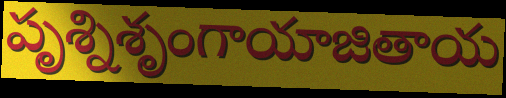
పృశ్నిశృంగాయాజితాయ